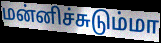
மன்னிச்சுடும்மா